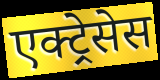
एक्ट्रेसेस